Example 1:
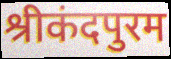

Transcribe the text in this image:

श्रीकंदपुरम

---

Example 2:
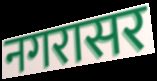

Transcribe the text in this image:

नगरासर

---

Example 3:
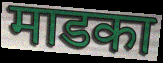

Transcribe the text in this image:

माडका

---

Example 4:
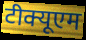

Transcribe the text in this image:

टीक्यूएम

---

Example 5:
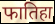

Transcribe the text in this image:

फातिहा